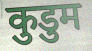
कुडुम